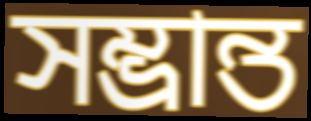
সম্ভ্ৰান্ত